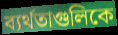
ব্যর্থতাগুলিকে